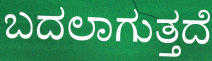
ಬದಲಾಗುತ್ತದೆ